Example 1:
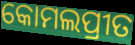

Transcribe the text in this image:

କୋମଲପ୍ରୀତ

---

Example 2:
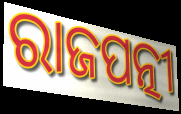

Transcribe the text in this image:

ରାଜପତ୍ନୀ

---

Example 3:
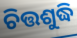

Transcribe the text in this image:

ଚିତ୍ତଶୁଦ୍ଧି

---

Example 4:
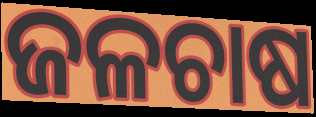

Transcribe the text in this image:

ଜଳଚାଷ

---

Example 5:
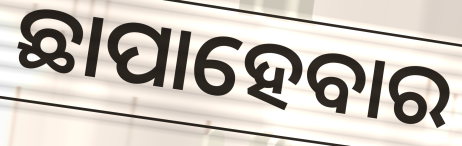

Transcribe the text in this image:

ଛାପାହେବାର